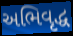
અભિવૃદ્ધ